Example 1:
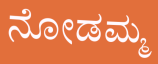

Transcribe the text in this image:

ನೋಡಮ್ಮ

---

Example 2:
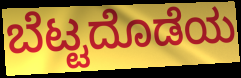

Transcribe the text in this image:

ಬೆಟ್ಟದೊಡೆಯ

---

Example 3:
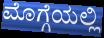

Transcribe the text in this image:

ಮೊಗ್ಗೆಯಲ್ಲಿ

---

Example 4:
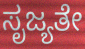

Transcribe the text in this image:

ಸೃಜ್ಯತೇ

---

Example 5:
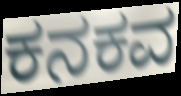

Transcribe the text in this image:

ಕನಕವ